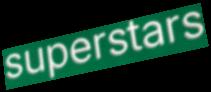
superstars